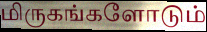
மிருகங்களோடும்